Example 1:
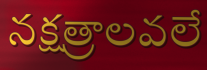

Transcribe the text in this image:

నక్షత్రాలవలే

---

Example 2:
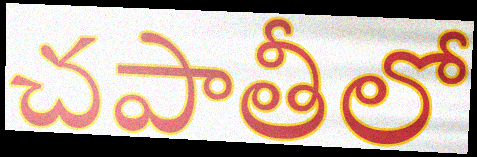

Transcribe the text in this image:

చపాతీలో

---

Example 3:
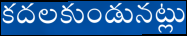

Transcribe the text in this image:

కదలకుండునట్లు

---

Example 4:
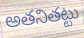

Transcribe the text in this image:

అతనితట్టు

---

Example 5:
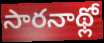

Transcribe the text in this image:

సారనాథ్లో